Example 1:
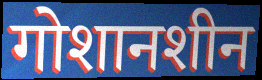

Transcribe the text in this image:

गोशानशीन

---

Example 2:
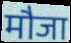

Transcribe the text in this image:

मौजा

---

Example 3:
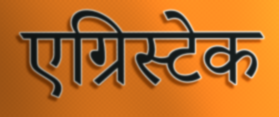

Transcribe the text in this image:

एग्रिस्टेक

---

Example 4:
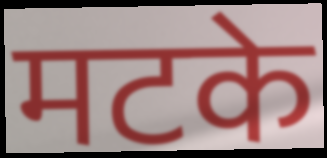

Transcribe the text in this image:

मटके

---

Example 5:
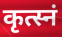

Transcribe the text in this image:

कृत्स्नं